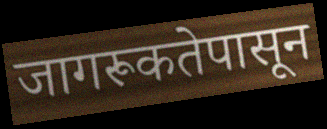
जागरूकतेपासून